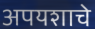
अपयशाचे